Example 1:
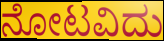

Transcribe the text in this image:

ನೋಟವಿದು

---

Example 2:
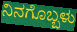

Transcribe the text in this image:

ನಿನಗೊಬ್ಬಳು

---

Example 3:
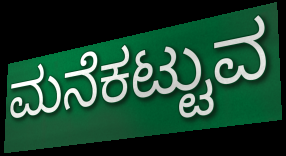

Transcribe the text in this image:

ಮನೆಕಟ್ಟುವ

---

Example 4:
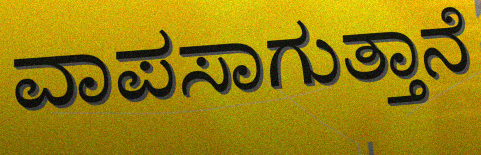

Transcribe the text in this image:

ವಾಪಸಾಗುತ್ತಾನೆ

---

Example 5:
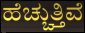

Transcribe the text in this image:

ಹೆಚ್ಚುತ್ತಿವೆ